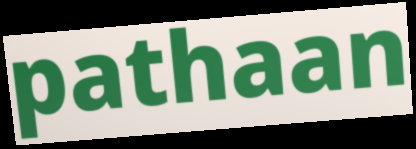
pathaan